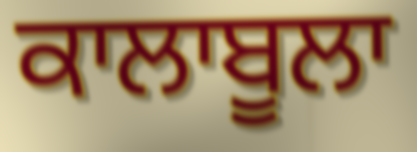
ਕਾਲਾਬੂਲਾ